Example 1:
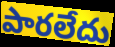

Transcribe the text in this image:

పారలేదు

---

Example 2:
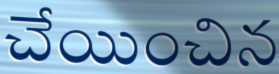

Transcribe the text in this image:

చేయించిన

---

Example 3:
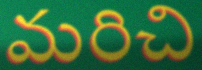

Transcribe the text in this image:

మరిచి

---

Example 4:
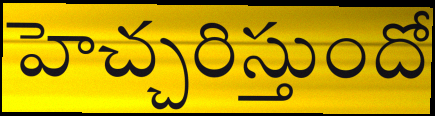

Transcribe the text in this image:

హెచ్చరిస్తుందో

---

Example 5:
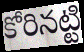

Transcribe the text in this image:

కోరినట్టి